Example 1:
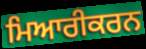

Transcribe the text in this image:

ਮਿਆਰੀਕਰਨ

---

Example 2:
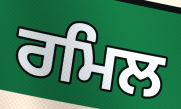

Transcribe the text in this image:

ਰਮਿਲ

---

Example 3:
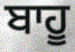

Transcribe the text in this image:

ਬਾਹੂ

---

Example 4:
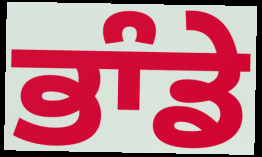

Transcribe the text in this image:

ਭਾੰਡੇ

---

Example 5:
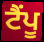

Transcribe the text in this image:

ਟੈਂਪੂ